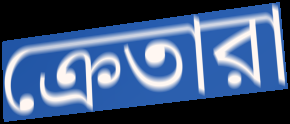
ক্রেতারা